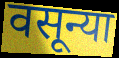
वसून्या